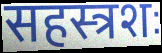
सहस्त्रशः